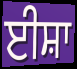
ਈਸ਼ਾ